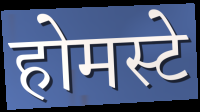
होमस्टे